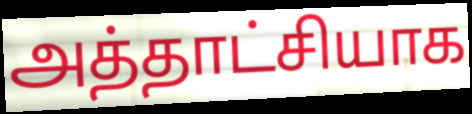
அத்தாட்சியாக